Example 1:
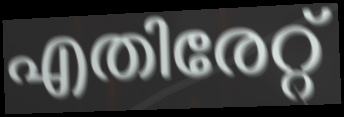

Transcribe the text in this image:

എതിരേറ്റ്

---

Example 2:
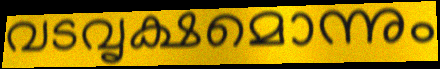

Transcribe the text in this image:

വടവൃക്ഷമൊന്നും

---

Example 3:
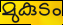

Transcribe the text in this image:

മുകുടം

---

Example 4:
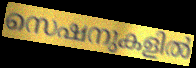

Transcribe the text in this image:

സെഷനുകളിൽ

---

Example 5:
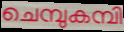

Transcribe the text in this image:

ചെമ്പുകമ്പി